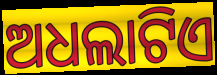
ଅଧଲାଟିଏ